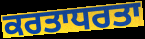
ਕਰਤਾਧਰਤਾ